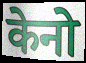
केनो